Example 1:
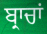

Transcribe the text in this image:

ਬ੍ਰਾਚਾਂ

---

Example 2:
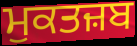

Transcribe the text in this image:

ਮੁਕਤਜ਼ਬ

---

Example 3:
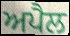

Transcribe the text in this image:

ਅਪੈਲ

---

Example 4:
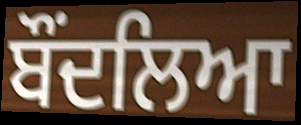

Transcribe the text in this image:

ਬੌਂਦਲਿਆ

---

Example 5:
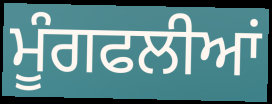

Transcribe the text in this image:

ਮੂੰਗਫਲੀਆਂ